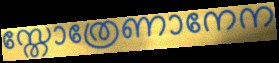
സ്തോത്രേണാനേന